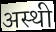
अस्थी